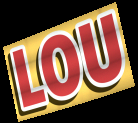
LOU